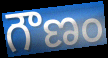
గౌణం